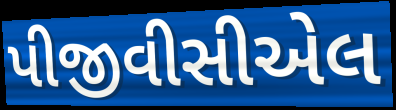
પીજીવીસીએલ